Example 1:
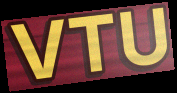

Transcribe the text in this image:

VTU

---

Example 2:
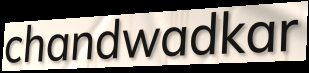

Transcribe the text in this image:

chandwadkar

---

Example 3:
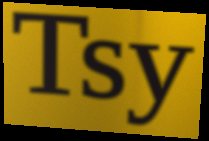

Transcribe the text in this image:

Tsy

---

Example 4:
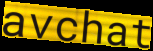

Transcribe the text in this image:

avchat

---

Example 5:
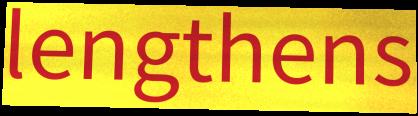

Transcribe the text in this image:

lengthens